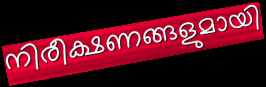
നിരീക്ഷണങ്ങളുമായി